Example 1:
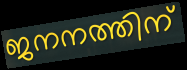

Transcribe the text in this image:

ജനനത്തിന്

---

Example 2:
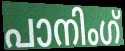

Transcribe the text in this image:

പാനിംഗ്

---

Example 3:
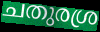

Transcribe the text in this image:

ചതുരശ്ര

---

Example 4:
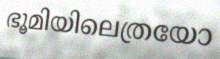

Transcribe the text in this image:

ഭൂമിയിലെത്രയോ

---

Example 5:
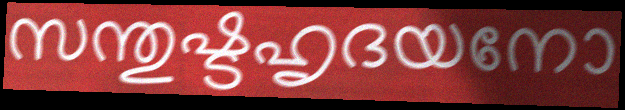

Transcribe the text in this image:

സന്തുഷ്ടഹൃദയനോ